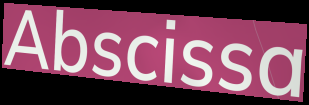
Abscissa